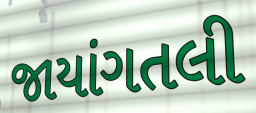
જાયાંગતલી